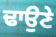
ਢਾਉਣੇ